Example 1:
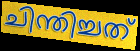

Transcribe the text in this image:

ചിന്തിച്ചത്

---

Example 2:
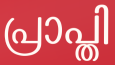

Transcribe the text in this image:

പ്രാപ്തി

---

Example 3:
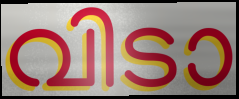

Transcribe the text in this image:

വിടാ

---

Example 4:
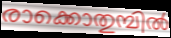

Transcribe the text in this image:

രാക്കൊതുമ്പിൽ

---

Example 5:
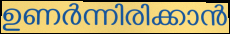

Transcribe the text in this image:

ഉണർന്നിരിക്കാൻ